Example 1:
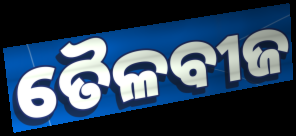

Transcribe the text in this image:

ତୈଳବୀଜ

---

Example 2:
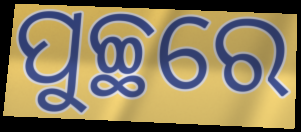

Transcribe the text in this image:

ପୁଚ୍ଛରେ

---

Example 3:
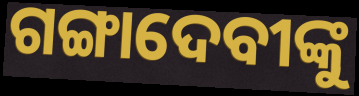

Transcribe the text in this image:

ଗଙ୍ଗାଦେବୀଙ୍କୁ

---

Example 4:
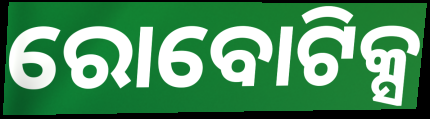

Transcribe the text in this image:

ରୋବୋଟିକ୍ସ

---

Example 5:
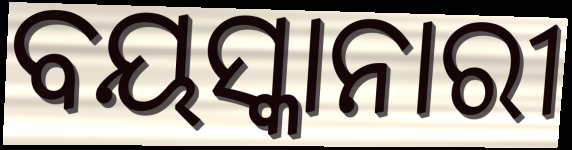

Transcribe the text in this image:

ବୟସ୍କାନାରୀ